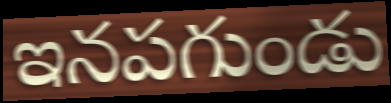
ఇనపగుండు